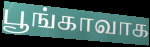
பூங்காவாக